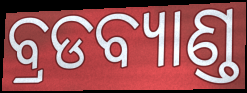
ବ୍ରଡବ୍ୟାଣ୍ଡ